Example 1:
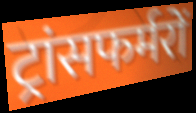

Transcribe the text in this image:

ट्रांसफर्मरों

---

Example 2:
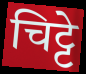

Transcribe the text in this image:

चिट्टे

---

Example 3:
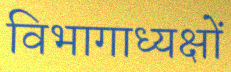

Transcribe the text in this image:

विभागाध्यक्षों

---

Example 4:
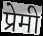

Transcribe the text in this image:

प्रेमी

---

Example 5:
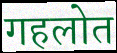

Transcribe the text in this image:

गहलोत